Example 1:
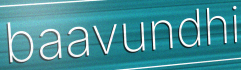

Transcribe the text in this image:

baavundhi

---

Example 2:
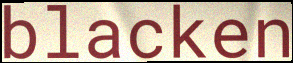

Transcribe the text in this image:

blacken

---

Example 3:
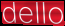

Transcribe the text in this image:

dello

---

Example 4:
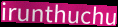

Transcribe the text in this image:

irunthuchu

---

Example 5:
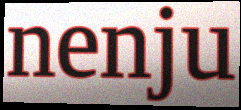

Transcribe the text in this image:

nenju